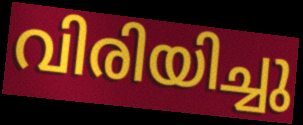
വിരിയിച്ചു